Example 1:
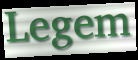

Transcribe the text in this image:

Legem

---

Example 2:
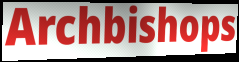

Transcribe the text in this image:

Archbishops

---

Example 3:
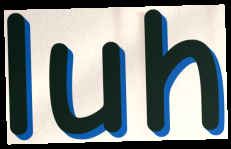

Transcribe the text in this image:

luh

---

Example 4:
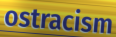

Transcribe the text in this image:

ostracism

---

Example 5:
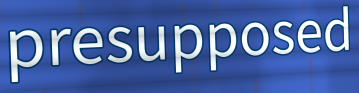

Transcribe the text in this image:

presupposed